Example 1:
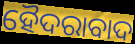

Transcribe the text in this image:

ହୈଦରାବାଦ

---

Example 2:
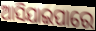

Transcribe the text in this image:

ଆସିଯାଇପାରେ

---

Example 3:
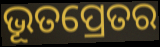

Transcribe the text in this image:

ଭୂତପ୍ରେତର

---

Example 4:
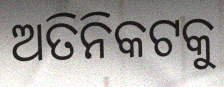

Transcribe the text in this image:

ଅତିନିକଟକୁ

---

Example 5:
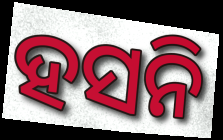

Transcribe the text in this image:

ହସନି